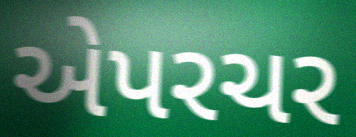
એપરચર